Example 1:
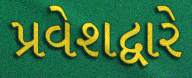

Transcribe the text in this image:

પ્રવેશદ્વારે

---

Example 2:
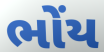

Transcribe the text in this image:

ભોંય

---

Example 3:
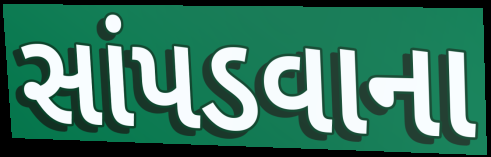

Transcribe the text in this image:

સાંપડવાના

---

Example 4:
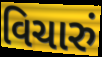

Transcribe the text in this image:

વિચારું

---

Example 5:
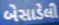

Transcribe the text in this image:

બેસાડેલી